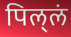
पिल्लं